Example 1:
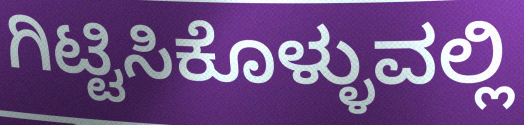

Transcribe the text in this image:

ಗಿಟ್ಟಿಸಿಕೊಳ್ಳುವಲ್ಲಿ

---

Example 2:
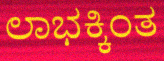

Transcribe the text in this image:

ಲಾಭಕ್ಕಿಂತ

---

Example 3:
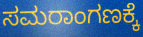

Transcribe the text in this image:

ಸಮರಾಂಗಣಕ್ಕೆ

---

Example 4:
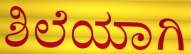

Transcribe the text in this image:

ಶಿಲೆಯಾಗಿ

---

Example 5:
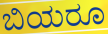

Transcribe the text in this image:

ಬಿಯರೂ